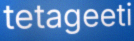
tetageeti